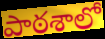
పాఠశాలో